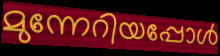
മുന്നേറിയപ്പോൾ